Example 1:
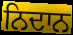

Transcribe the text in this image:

ਨਿਦਾਨ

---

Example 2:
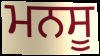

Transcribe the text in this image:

ਮਨਸੂ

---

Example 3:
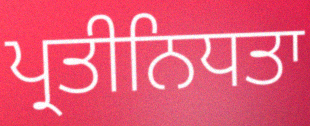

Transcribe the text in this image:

ਪ੍ਰਤੀਨਿਧਤਾ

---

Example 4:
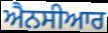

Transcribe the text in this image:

ਐਨਸੀਆਰ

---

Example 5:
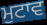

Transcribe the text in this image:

ਮੁਟਾਵ